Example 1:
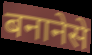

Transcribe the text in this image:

बनानेसे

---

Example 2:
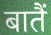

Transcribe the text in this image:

बातैं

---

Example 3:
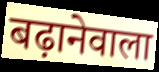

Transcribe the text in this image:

बढ़ानेवाला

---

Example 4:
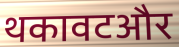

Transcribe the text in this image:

थकावटऔर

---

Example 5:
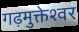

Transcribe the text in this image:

गढ़मुक्तेश्वर